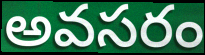
అవసరం